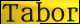
Tabor